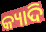
କ୍ୟାଦି